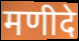
मणीदे